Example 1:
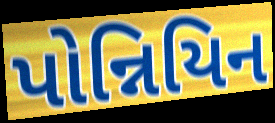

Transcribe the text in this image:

પોન્નિયિન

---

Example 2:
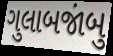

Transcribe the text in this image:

ગુલાબજાંબુ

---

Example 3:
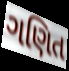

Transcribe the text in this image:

ગણિત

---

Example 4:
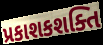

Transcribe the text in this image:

પ્રકાશકશક્તિ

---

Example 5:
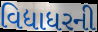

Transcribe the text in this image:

વિદ્યાધરની